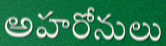
అహరోనులు